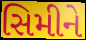
સિમીને